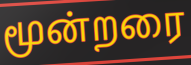
மூன்றரை